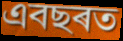
এবছৰত